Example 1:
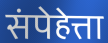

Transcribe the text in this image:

संपेहेत्ता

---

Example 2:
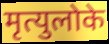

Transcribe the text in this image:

मृत्युलोके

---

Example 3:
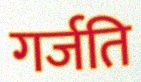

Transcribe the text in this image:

गर्जति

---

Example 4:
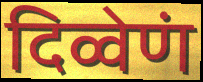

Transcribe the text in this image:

दिव्वेणं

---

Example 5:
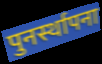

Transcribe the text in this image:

पुनर्स्थापना